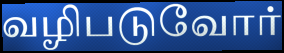
வழிபடுவோர்